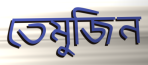
তেমুজিন